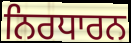
ਨਿਰਧਾਰਨ